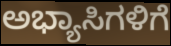
ಅಭ್ಯಾಸಿಗಳಿಗೆ